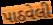
પાઠવેલી